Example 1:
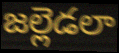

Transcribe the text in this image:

జల్లెడలా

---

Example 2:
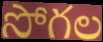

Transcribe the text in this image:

సోగల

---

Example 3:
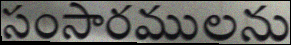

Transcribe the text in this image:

సంసారములను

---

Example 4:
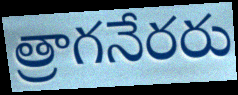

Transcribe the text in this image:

త్రాగనేరరు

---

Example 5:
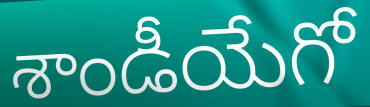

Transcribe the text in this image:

శాండీయేగో